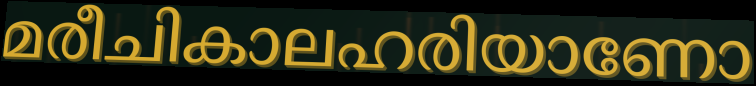
മരീചികാലഹരിയാണോ